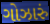
ગોઝારું